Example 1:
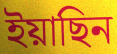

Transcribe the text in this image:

ইয়াছিন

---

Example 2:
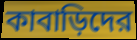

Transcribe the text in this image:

কাবাড়িদের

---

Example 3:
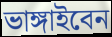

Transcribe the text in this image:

ভাঙ্গাইবেন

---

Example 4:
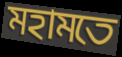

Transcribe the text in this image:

মহামতে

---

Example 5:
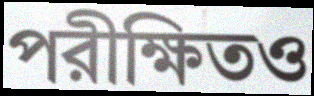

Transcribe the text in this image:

পরীক্ষিতও